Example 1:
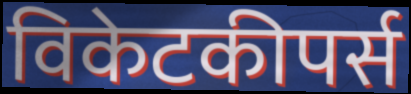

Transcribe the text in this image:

विकेटकीपर्स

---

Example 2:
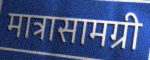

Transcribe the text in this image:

मात्रासामग्री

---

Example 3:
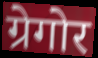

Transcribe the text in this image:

ग्रेगोर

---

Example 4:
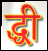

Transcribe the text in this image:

द्धी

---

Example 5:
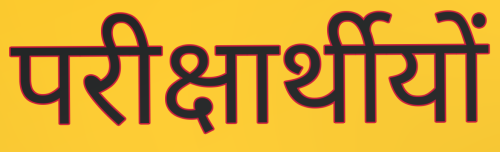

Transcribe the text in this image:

परीक्षार्थीयों